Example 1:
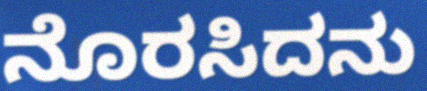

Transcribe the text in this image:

ನೊರಸಿದನು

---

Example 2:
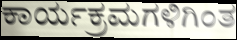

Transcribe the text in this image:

ಕಾರ್ಯಕ್ರಮಗಳಿಗಿಂತ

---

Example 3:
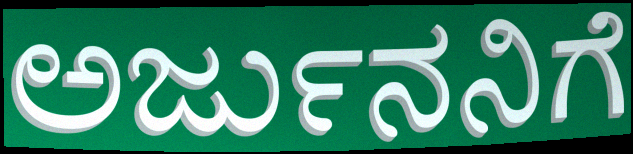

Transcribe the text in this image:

ಅರ್ಜುನನಿಗೆ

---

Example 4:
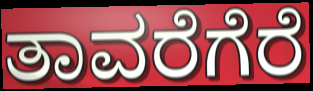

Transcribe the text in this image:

ತಾವರೆಗೆರೆ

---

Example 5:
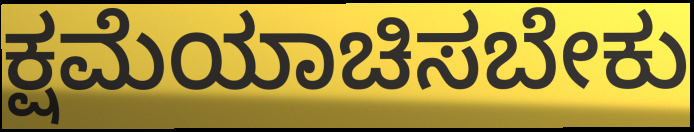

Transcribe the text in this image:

ಕ್ಷಮೆಯಾಚಿಸಬೇಕು